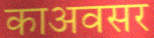
काअवसर